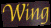
Wing